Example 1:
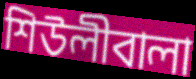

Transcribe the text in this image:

শিউলীবালা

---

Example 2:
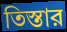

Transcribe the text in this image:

তিস্তার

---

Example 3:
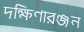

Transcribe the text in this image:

দক্ষিণারঞ্জন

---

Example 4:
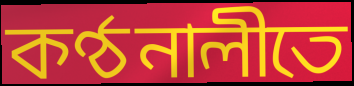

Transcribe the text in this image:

কণ্ঠনালীতে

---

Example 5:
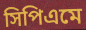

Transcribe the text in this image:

সিপিএমে